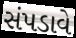
સંપડાવે